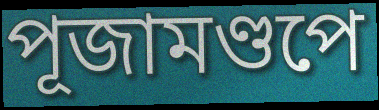
পূজামণ্ডপে